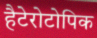
हैटेरोटोपिक